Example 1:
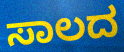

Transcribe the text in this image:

ಸಾಲದ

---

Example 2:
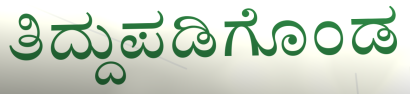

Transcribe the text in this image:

ತಿದ್ದುಪಡಿಗೊಂಡ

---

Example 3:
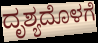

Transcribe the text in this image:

ದೃಶ್ಯದೊಳಗೆ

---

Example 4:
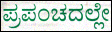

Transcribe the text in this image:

ಪ್ರಪಂಚದಲ್ಲೇ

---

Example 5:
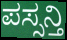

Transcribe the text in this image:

ಪಸ್ಸನ್ತಿ